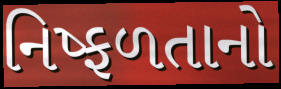
નિષ્ફળતાનો